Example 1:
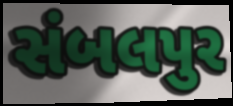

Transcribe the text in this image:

સંબલપુર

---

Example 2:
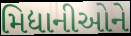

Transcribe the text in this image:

મિદ્યાનીઓને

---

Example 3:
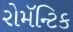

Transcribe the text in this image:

રોમૅન્ટિક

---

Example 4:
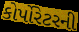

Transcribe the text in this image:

કોર્પોરેટરની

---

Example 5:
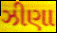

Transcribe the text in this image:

ઝીણા